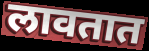
लावतात